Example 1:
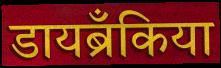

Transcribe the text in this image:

डायब्रँकिया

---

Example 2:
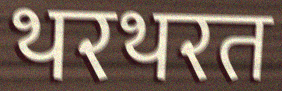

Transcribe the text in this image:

थरथरत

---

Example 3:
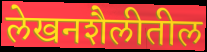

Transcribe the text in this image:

लेखनशैलीतील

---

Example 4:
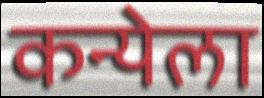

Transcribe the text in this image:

कन्येला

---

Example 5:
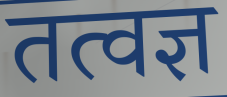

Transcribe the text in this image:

तत्वज्ञ